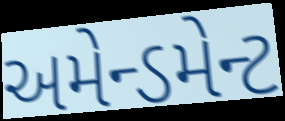
અમેન્ડમેન્ટ